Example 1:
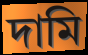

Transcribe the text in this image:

দামি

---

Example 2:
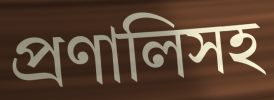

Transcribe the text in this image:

প্রণালিসহ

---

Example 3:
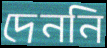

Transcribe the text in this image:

দেননি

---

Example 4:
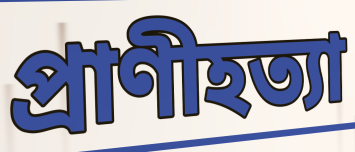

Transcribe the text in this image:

প্রাণীহত্যা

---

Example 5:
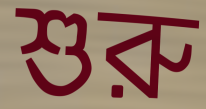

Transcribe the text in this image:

শুরু